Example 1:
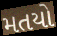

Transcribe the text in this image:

મતયો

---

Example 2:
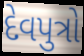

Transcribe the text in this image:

દેવપુત્રો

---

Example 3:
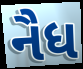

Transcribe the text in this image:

નૈધ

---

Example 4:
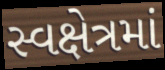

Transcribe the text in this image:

સ્વક્ષેત્રમાં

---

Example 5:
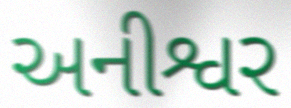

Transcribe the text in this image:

અનીશ્વર